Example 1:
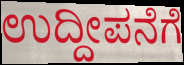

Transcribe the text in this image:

ಉದ್ದೀಪನೆಗೆ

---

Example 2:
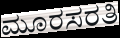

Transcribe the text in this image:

ಮೂರಸರತಿ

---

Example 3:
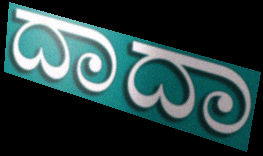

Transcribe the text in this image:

ದಾದಾ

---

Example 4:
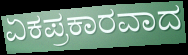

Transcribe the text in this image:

ಏಕಪ್ರಕಾರವಾದ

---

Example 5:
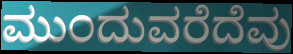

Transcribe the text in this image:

ಮುಂದುವರೆದೆವು